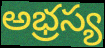
అభ్రస్య